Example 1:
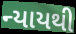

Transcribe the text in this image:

ન્યાયથી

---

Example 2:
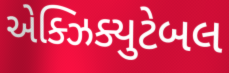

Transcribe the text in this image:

એક્ઝિક્યુટેબલ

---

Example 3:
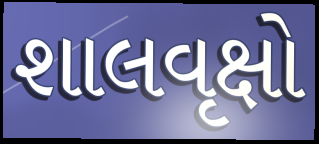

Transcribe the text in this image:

શાલવૃક્ષો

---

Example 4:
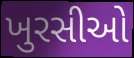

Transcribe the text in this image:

ખુરસીઓ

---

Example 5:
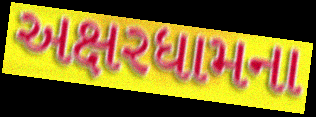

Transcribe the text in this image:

અક્ષરધામના